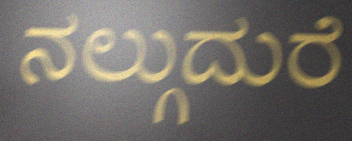
ನಲ್ಗುದುರೆ